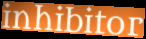
inhibitor